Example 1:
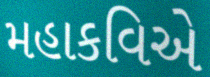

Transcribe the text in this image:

મહાકવિએ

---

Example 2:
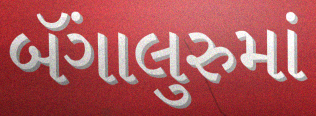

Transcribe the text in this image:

બૅંગાલુરુમાં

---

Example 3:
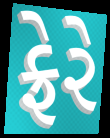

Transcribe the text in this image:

ફ્રેરે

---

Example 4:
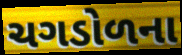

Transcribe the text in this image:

ચગડોળના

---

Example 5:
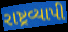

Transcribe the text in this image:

રાષ્ટ્રવ્યાપી